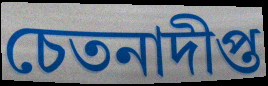
চেতনাদীপ্ত